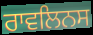
ਰਾਵਲਿਨਸ